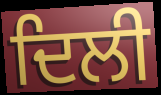
ਦਿਲੀ